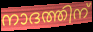
നാദത്തിന്